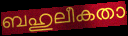
ബഹുലീകതാ